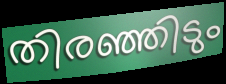
തിരഞ്ഞിടും